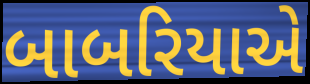
બાબરિયાએ